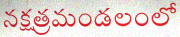
నక్షత్రమండలంలో